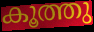
കൂത്തു